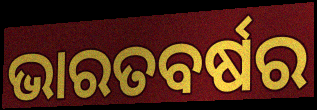
ଭାରତବର୍ଷର